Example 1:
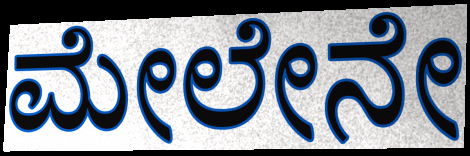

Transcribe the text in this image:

ಮೇಲೇನೇ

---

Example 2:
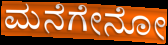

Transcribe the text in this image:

ಮನೆಗೇನೋ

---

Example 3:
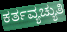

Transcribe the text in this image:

ಕರ್ತವ್ಯಚ್ಯುತಿ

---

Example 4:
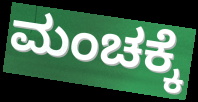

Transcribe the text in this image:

ಮಂಚಕ್ಕೆ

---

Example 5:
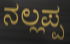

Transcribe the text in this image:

ನಲ್ಲಪ್ಪ